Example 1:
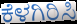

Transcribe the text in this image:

ಕೆಳಗಿರಿಸಿ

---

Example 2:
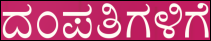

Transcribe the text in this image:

ದಂಪತಿಗಳಿಗೆ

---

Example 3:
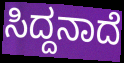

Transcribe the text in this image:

ಸಿದ್ದನಾದೆ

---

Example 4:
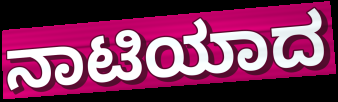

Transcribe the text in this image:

ನಾಟಿಯಾದ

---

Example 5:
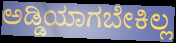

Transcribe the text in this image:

ಅಡ್ಡಿಯಾಗಬೇಕಿಲ್ಲ